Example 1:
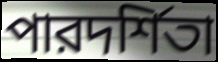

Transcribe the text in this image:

পারদর্শিতা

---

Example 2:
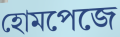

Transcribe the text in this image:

হোমপেজে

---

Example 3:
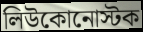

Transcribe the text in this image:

লিউকোনোস্টক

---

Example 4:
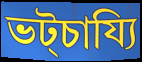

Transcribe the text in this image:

ভট্চায্যি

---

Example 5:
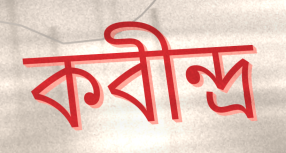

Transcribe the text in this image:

কবীন্দ্র